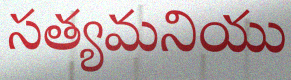
సత్యమనియు